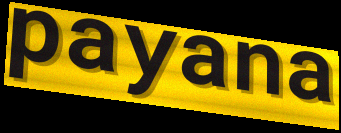
payana